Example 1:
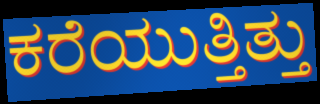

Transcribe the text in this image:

ಕರೆಯುತ್ತಿತ್ತು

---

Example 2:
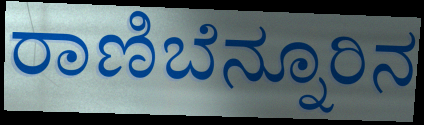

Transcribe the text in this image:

ರಾಣಿಬೆನ್ನೂರಿನ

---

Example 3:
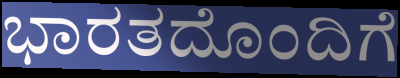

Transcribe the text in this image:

ಭಾರತದೊಂದಿಗೆ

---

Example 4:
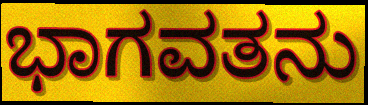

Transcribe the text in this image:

ಭಾಗವತನು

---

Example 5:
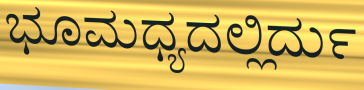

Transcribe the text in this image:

ಭೂಮಧ್ಯದಲ್ಲಿರ್ದು